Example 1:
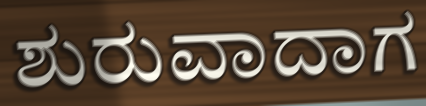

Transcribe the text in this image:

ಶುರುವಾದಾಗ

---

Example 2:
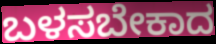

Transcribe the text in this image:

ಬಳಸಬೇಕಾದ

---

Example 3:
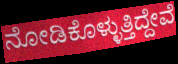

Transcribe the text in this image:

ನೋಡಿಕೊಳ್ಳುತ್ತಿದ್ದೇವೆ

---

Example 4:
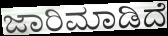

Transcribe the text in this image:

ಜಾರಿಮಾಡಿದೆ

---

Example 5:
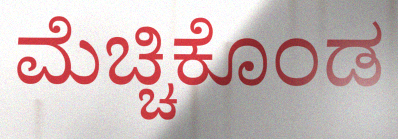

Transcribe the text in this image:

ಮೆಚ್ಚಿಕೊಂಡ